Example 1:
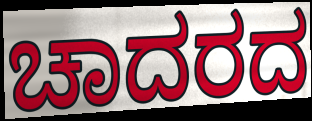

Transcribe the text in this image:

ಚಾದರದ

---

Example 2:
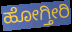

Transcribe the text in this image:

ಹೋಗ್ತೀರಿ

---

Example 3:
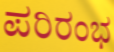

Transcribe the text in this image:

ಪರಿರಂಭ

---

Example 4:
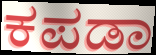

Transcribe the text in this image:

ಕಪಡಾ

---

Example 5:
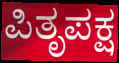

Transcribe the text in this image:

ಪಿತೃಪಕ್ಷ